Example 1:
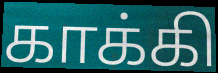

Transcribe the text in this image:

காக்கி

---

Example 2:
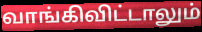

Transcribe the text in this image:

வாங்கிவிட்டாலும்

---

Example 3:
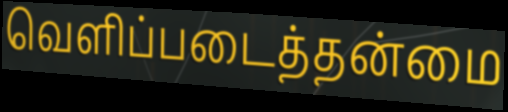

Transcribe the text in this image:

வெளிப்படைத்தன்மை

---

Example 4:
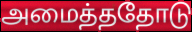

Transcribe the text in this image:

அமைத்ததோடு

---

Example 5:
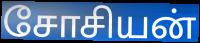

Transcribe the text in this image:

சோசியன்